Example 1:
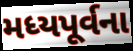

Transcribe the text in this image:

મધ્યપૂર્વના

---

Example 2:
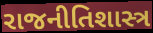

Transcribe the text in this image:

રાજનીતિશાસ્ત્ર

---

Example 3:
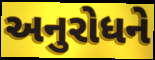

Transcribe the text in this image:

અનુરોધને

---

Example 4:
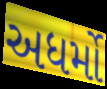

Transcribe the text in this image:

અધર્મો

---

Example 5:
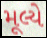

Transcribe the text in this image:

મૂલ્યે